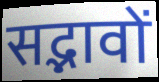
सद्भावों